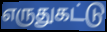
எருதுகட்டு